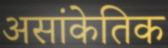
असांकेतिक